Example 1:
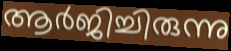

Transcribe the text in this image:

ആർജിച്ചിരുന്നു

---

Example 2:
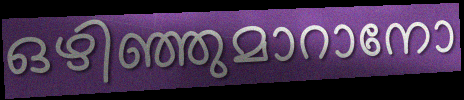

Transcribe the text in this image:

ഒഴിഞ്ഞുമാറാനോ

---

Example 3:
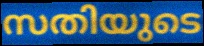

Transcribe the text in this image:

സതിയുടെ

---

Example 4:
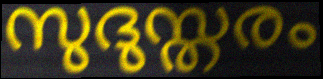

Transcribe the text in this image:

സുദുസ്തരം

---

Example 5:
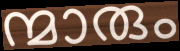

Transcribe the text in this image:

ന്മാരും